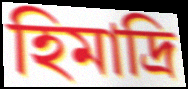
হিমাদ্রি